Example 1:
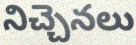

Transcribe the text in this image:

నిచ్చెనలు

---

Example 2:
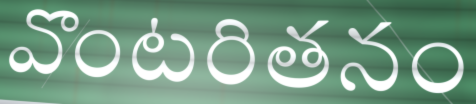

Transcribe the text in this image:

వొంటరితనం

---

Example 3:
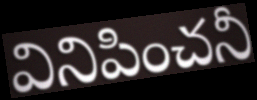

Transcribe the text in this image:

వినిపించనీ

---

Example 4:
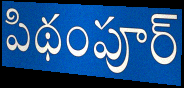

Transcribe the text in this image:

పిథంపూర్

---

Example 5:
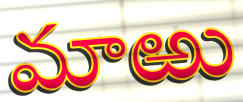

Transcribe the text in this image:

మాఱు